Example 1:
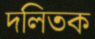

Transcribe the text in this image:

দলিতক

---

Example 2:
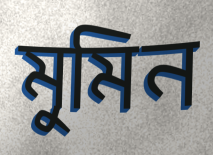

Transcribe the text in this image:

মুমিন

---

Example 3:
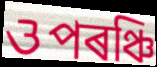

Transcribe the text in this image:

ওপৰঞ্চি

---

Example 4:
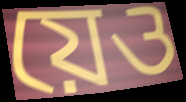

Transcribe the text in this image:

য়েও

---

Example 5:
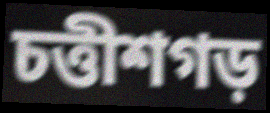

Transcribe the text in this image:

চত্তীশগড়